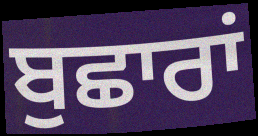
ਬੁਛਾਰਾਂ